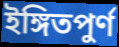
ইঙ্গিতপুর্ণ